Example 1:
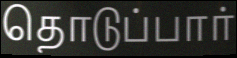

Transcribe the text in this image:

தொடுப்பார்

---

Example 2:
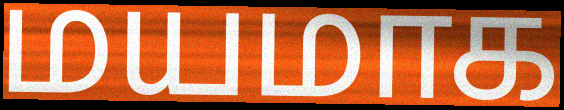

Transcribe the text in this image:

மயமாக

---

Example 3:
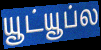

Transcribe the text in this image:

யூட்யூப்ல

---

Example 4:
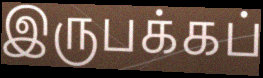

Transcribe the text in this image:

இருபக்கப்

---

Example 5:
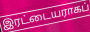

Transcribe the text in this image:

இரட்டையராகப்